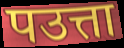
पउत्ता